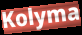
Kolyma